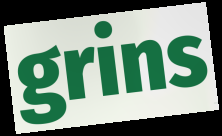
grins